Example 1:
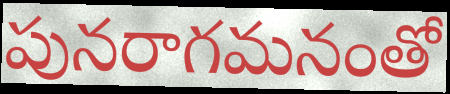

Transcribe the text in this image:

పునరాగమనంతో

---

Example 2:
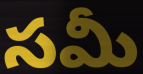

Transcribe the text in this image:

సమీ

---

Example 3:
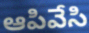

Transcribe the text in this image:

ఆపివేసి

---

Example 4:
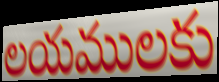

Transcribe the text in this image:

లయములకు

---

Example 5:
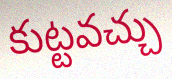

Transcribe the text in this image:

కుట్టవచ్చు